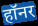
हॉनर